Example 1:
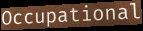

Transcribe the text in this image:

Occupational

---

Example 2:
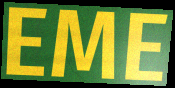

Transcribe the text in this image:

EME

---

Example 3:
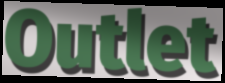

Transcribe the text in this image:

Outlet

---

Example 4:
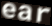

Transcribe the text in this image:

ear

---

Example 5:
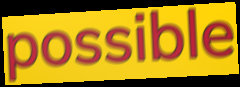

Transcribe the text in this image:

possible